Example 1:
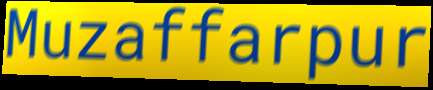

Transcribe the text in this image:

Muzaffarpur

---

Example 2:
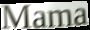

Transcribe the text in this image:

Mama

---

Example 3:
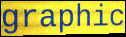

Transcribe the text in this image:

graphic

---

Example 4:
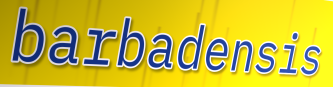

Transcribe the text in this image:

barbadensis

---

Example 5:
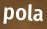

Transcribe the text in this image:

pola